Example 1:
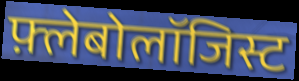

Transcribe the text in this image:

फ़्लेबोलॉजिस्ट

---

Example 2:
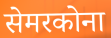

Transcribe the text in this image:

सेमरकोना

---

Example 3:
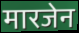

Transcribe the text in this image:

मारजेन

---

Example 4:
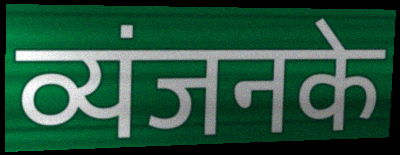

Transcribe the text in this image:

व्यंजनके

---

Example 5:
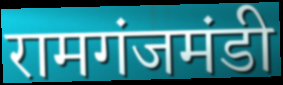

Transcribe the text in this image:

रामगंजमंडी